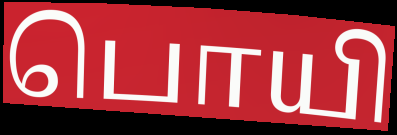
பொயி